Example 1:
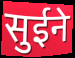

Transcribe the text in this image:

सुईने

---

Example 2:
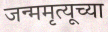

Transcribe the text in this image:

जन्ममृत्यूच्या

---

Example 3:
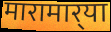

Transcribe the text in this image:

मारामार्‍या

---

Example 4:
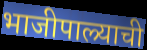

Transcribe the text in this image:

भाजीपाल्याची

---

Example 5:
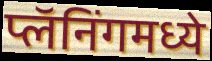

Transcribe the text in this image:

प्लॅनिंगमध्ये